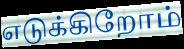
எடுக்கிறோம்